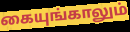
கையுங்காலும்